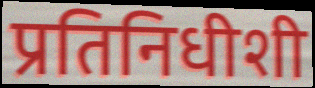
प्रतिनिधीशी